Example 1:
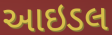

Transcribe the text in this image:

આઇડલ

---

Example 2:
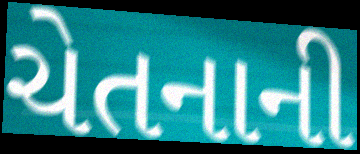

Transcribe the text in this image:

ચેતનાની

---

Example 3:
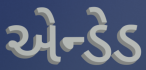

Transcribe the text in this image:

એન્ડેડ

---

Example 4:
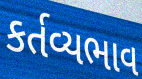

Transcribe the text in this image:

કર્તવ્યભાવ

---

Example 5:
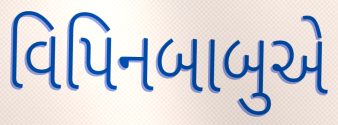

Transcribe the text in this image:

વિપિનબાબુએ